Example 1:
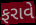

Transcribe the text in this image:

ફરાવે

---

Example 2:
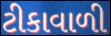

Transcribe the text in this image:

ટીકાવાળી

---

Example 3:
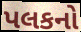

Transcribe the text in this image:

પલકનો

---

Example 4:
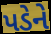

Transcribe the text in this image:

પડેને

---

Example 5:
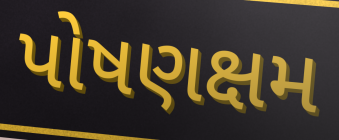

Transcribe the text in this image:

પોષણક્ષમ